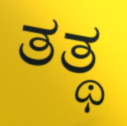
ತತ್ಥ